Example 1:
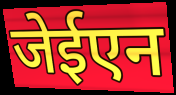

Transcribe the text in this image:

जेईएन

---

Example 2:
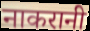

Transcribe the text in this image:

नाकरानी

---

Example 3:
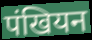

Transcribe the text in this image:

पंखियन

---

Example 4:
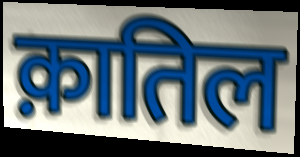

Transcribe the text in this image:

क़ातिल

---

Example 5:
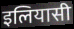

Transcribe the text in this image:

इलियासी